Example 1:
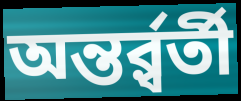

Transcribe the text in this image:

অন্তর্র্বর্তী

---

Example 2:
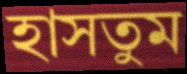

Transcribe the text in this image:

হাসতুম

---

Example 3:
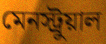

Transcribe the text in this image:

মেনস্ট্রুয়াল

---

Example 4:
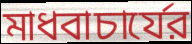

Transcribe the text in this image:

মাধবাচার্যের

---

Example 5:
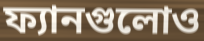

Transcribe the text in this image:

ফ্যানগুলোও